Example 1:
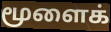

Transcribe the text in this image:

மூளைக்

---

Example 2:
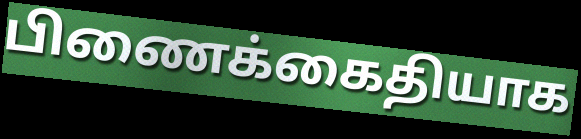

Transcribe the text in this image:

பிணைக்கைதியாக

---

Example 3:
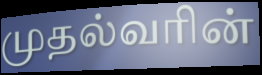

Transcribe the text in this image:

முதல்வரின்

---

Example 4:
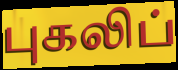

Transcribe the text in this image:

புகலிப்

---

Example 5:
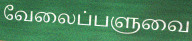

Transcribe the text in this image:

வேலைப்பளுவை